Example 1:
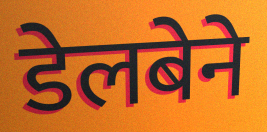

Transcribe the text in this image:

डेलबेने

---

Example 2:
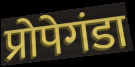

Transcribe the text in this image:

प्रोपेगंडा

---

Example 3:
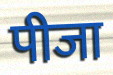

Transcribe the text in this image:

पीजा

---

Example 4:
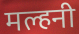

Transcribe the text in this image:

मल्हनी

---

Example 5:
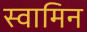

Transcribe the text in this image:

स्वामिन